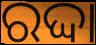
ରଦ୍ଦା